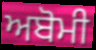
ਅਬੋਮੀ